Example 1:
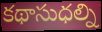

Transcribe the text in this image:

కథాసుధల్ని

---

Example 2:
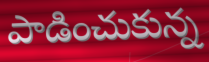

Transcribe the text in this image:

పాడించుకున్న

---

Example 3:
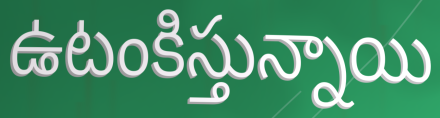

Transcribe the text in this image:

ఉటంకిస్తున్నాయి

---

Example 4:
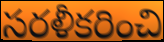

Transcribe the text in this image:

సరళీకరించి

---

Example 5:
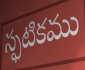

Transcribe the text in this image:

స్ఫటికము